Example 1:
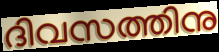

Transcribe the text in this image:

ദിവസത്തിനു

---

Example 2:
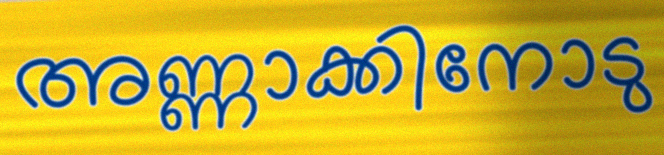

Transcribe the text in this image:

അണ്ണാക്കിനോടു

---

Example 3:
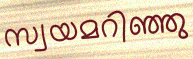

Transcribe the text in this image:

സ്വയമറിഞ്ഞു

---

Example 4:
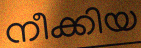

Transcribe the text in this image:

നീക്കിയ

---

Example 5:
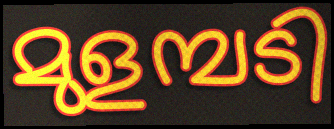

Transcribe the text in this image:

മുളമ്പടി